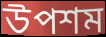
উপশম